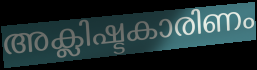
അക്ലിഷ്ടകാരിണം